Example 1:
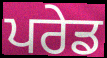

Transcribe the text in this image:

ਪਰੇਡ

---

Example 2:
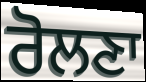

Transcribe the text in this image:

ਰੋਲਣਾ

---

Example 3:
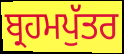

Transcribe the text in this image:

ਬ੍ਰਹਮਪੁੱਤਰ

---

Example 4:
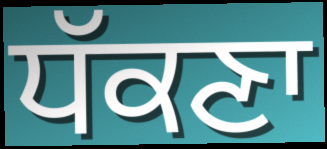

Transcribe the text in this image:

ਧੱਕਣਾ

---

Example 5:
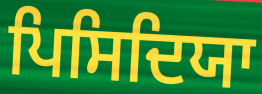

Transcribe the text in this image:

ਪਿਸਿਦਿਯਾ